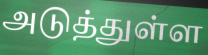
அடுத்துள்ள